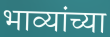
भाव्यांच्या